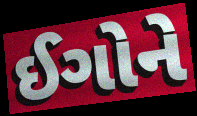
ઈગોને